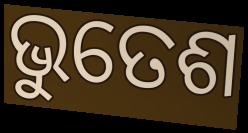
ଭୁତେଶ